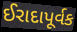
ઈરાદાપૂર્વક